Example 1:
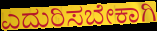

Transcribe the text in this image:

ಎದುರಿಸಬೇಕಾಗಿ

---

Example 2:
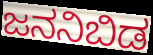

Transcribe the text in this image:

ಜನನಿಬಿಡ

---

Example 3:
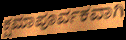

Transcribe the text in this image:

ಕ್ಷಮಾಪೂರ್ವಕವಾಗಿ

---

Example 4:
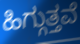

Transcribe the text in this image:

ಹಿಗ್ಗುತ್ತವೆ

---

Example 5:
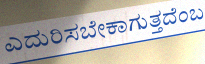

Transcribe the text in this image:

ಎದುರಿಸಬೇಕಾಗುತ್ತದೆಂಬ